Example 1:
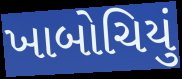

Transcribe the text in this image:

ખાબોચિયું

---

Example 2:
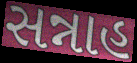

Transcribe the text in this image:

સન્નાહ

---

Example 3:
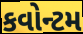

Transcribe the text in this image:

કવોન્ટમ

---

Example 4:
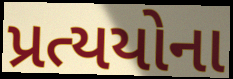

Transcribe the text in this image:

પ્રત્યયોના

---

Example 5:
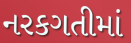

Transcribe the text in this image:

નરકગતીમાં